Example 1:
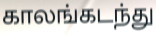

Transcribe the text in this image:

காலங்கடந்து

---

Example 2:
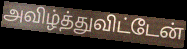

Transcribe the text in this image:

அவிழ்த்துவிட்டேன்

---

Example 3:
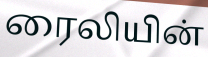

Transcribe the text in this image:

ரைலியின்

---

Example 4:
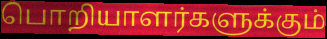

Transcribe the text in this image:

பொறியாளர்களுக்கும்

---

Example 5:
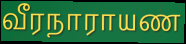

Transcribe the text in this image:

வீரநாராயண